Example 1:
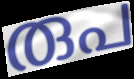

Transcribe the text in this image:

രുപ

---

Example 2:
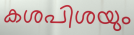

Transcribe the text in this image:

കശപിശയും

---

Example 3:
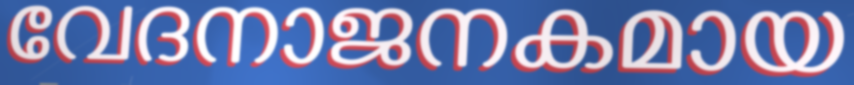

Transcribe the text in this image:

വേദനാജനകമായ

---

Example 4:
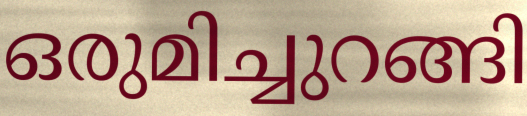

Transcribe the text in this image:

ഒരുമിച്ചുറങ്ങി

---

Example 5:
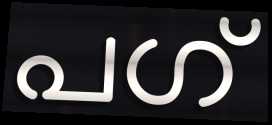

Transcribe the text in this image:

പഗ്